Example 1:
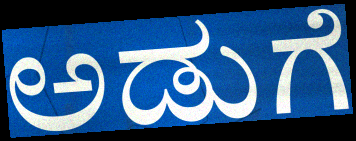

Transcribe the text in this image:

ಅಡುಗೆ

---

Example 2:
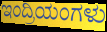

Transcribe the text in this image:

ಇಂದ್ರಿಯಂಗಳು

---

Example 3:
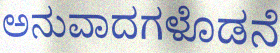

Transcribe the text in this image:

ಅನುವಾದಗಳೊಡನೆ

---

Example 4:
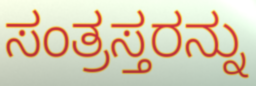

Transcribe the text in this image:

ಸಂತ್ರಸ್ತರನ್ನು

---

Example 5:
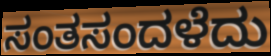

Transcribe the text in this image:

ಸಂತಸಂದಳೆದು